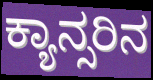
ಕ್ಯಾನ್ಸರಿನ